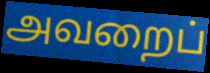
அவறைப்